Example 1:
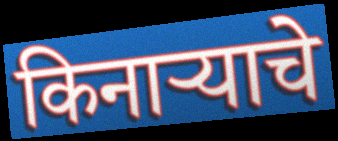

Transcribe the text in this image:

किनाऱ्याचे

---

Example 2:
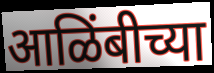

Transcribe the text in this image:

आळिंबीच्या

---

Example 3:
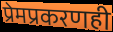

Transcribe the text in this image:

प्रेमप्रकरणही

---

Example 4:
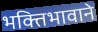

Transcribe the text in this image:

भक्तिभावाने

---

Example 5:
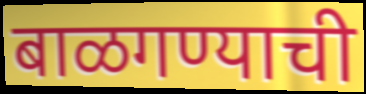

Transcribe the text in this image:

बाळगण्याची